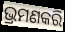
ଭ୍ରମଣକରି